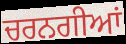
ਚਰਨਗੀਆਂ